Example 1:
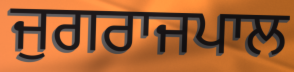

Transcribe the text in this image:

ਜੁਗਰਾਜਪਾਲ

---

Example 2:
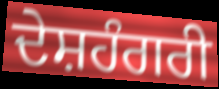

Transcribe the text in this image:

ਦੇਸ਼ਹੰਗਰੀ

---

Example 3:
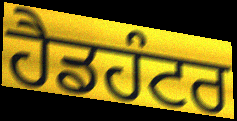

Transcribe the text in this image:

ਹੈਡਹੰਟਰ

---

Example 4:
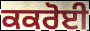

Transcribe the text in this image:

ਕਕਰੋਈ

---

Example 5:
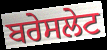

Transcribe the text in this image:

ਬਰੇਸਲੇਟ